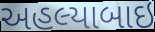
અહલ્યાબાઇ